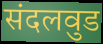
संदलवुड